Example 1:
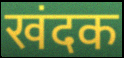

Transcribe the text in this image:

खंदक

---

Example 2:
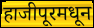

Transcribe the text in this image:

हाजीपूरमधून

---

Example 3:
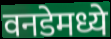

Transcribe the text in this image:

वनडेमध्ये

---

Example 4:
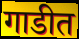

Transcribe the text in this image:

गाडीत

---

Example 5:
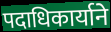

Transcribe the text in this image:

पदाधिकार्याने